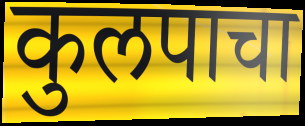
कुलपाचा